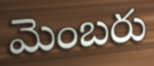
మెంబరు